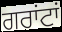
ਗਰਾਂਟਾਂ